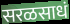
सरळसाधं